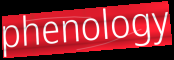
phenology